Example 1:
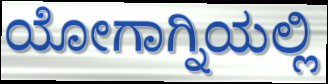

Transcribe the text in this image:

ಯೋಗಾಗ್ನಿಯಲ್ಲಿ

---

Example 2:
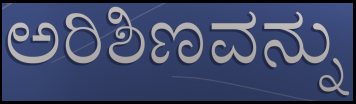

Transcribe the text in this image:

ಅರಿಶಿಣವನ್ನು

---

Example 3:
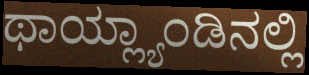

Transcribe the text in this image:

ಥಾಯ್ಲ್ಯಾಂಡಿನಲ್ಲಿ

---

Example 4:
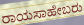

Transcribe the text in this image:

ರಾಯಸಾಹೇಬರು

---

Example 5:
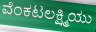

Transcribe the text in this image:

ವೆಂಕಟಲಕ್ಷ್ಮಿಯು